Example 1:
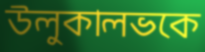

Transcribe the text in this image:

উলুকালভকে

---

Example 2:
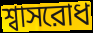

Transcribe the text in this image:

শ্বাসরোধ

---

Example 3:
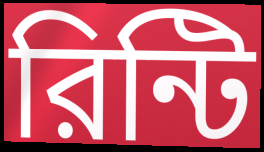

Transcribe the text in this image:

রিন্টি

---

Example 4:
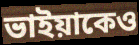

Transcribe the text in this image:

ভাইয়াকেও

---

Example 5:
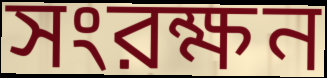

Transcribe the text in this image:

সংরক্ষন